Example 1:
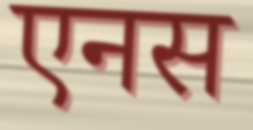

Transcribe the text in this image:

एनस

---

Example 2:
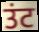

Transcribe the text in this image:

उंट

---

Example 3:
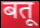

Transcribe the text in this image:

बतू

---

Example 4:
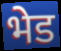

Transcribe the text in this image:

भेड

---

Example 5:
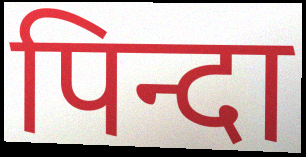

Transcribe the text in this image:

पिन्दा